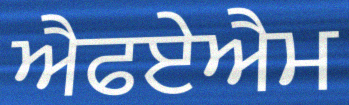
ਐਫਏਐਮ